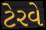
ટેરવે